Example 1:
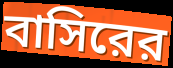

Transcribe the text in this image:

বাসিরের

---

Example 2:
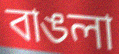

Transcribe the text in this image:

বাঙলা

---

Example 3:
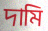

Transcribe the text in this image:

দামি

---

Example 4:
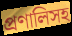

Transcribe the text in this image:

প্রণালিসহ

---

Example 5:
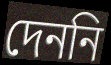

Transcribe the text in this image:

দেননি